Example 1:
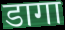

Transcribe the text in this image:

डागा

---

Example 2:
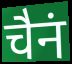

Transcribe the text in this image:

चैनं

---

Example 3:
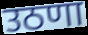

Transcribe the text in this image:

उठणा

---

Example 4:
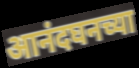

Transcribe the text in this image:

आनंदघनच्या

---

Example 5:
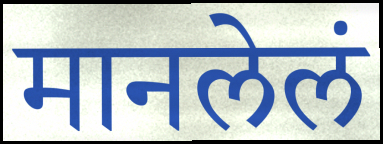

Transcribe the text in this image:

मानलेलं